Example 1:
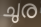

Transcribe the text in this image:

ചുര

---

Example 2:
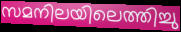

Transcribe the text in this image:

സമനിലയിലെത്തിച്ചു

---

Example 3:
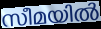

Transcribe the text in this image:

സീമയിൽ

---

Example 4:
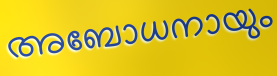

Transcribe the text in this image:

അബോധനായും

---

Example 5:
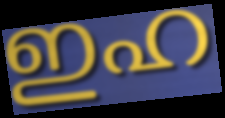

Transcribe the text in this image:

ഇഹ